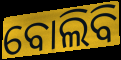
ବୋଲିବି